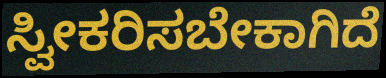
ಸ್ವೀಕರಿಸಬೇಕಾಗಿದೆ